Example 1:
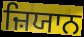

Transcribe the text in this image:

ਜ਼ਿਯਾਨ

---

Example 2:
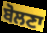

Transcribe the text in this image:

ਬੋਲਣਾ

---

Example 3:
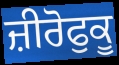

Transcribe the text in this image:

ਜ਼ੀਰੋਫੁਕੂ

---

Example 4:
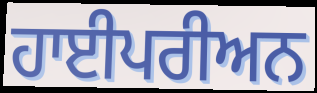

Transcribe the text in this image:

ਹਾਈਪਰੀਅਨ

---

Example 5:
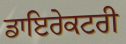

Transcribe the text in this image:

ਡਾਇਰੇਕਟਰੀ